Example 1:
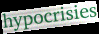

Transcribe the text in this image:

hypocrisies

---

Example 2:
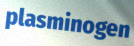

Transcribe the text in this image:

plasminogen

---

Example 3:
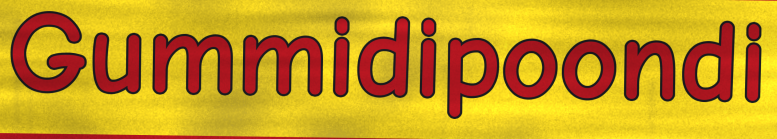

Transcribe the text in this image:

Gummidipoondi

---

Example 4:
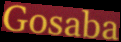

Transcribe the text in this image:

Gosaba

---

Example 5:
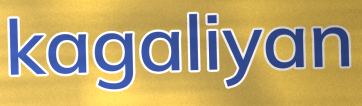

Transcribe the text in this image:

kagaliyan